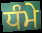
ਧੰਮੇ